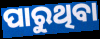
ପାରୁଥିବା